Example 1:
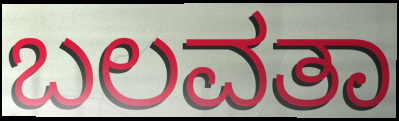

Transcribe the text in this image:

ಬಲವತಾ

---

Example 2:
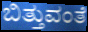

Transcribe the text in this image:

ಬಿತ್ತುವಂತೆ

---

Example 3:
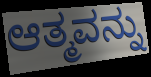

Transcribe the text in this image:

ಆತ್ಮವನ್ನು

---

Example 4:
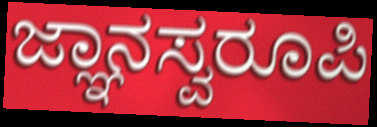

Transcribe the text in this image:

ಜ್ಞಾನಸ್ವರೂಪಿ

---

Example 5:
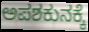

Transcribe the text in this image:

ಅಪಶಕುನಕ್ಕೆ